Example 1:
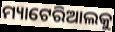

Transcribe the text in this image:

ମ୍ୟାଟେରିଆଲକୁ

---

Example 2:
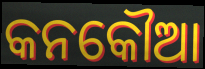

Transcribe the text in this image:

କନକୌଆ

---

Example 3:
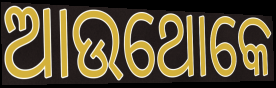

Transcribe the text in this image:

ଆଉଥୋକେ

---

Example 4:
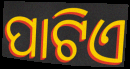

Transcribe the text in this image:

ପାଟିଏ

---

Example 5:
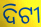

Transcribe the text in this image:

ଦିଟୀ